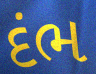
દંભ